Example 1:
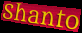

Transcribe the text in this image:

Shanto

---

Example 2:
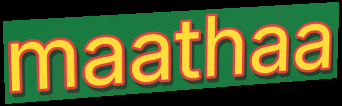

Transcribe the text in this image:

maathaa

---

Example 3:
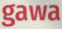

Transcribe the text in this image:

gawa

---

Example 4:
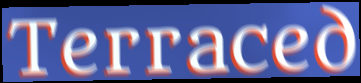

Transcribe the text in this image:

Terraced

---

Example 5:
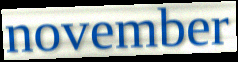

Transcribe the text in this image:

november